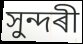
সুন্দৰী